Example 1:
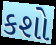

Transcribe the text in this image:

કશો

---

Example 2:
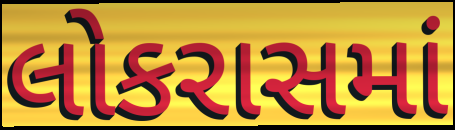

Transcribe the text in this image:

લોકરાસમાં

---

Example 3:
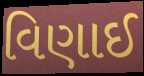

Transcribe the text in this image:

વિણાઈ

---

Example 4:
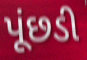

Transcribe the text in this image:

પૂંછડી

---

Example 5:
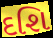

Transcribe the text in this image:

દશિ